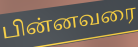
பின்னவரை